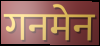
गनमेन